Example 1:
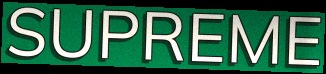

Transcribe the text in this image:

SUPREME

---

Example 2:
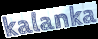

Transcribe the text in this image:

kalanka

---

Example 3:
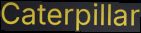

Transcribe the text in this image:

Caterpillar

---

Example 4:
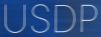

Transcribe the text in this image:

USDP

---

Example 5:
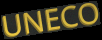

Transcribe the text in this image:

UNECO